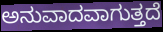
ಅನುವಾದವಾಗುತ್ತದೆ